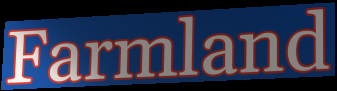
Farmland